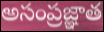
అసంప్రజ్ఞాత